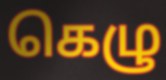
கெழு